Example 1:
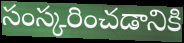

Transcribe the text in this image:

సంస్కరించడానికి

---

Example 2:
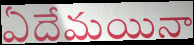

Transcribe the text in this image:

ఏదేమయినా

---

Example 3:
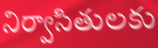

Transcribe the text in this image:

నిర్వాసితులకు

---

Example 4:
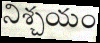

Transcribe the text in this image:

నిశ్చయం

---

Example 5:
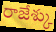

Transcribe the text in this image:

రాజేశ్కు